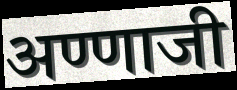
अण्णाजी